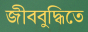
জীববুদ্ধিতে